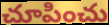
చూపించు